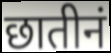
छातीनं